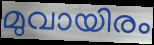
മുവായിരം